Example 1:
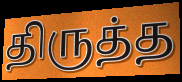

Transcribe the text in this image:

திருத்த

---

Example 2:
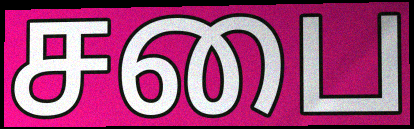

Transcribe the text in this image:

சபை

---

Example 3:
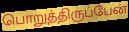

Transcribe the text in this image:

பொறுத்திருப்பேன்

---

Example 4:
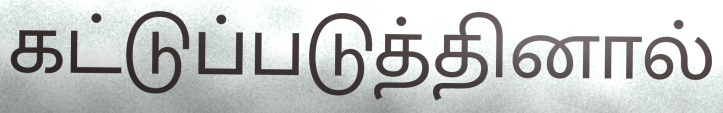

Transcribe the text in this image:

கட்டுப்படுத்தினால்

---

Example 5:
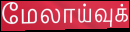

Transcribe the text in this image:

மேலாய்வுக்